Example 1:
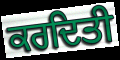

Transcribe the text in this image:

ਕਰਦਿਤੀ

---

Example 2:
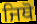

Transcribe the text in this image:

ਜਿਥੋ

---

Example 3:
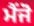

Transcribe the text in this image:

ਮੈਂਜੋ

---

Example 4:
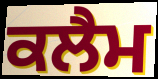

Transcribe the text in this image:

ਕਲੈਮ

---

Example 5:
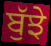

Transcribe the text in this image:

ਬੁੱਝੇ